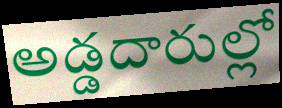
అడ్డదారుల్లో